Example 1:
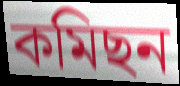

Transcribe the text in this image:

কমিছন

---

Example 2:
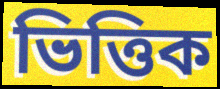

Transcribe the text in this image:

ভিত্তিক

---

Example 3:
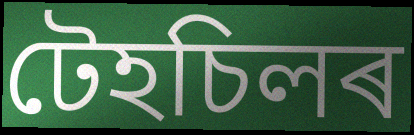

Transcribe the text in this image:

টেহচিলৰ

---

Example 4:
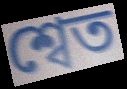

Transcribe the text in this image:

শ্বেত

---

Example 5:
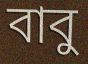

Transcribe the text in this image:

বাবু